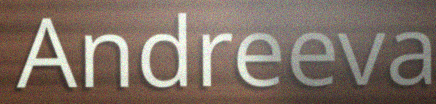
Andreeva